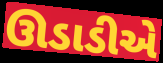
ઊડાડીએ